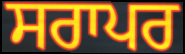
ਸਰਾਪਰ